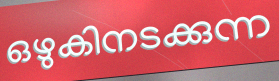
ഒഴുകിനടക്കുന്ന